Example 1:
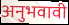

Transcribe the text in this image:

अनुभवावी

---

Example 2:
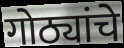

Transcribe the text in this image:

गोठ्यांचे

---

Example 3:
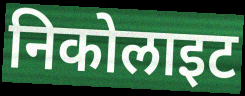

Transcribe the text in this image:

निकोलाइट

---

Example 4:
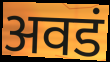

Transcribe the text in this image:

अवडं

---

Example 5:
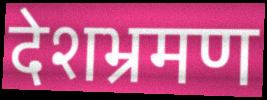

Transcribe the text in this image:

देशभ्रमण